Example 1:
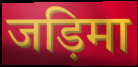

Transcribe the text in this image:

जड़िमा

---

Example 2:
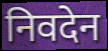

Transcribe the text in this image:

निवदेन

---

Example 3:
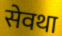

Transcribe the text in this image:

सेवथा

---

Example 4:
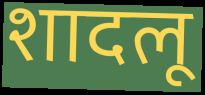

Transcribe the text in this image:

शादलू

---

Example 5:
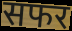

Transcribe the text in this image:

सफर